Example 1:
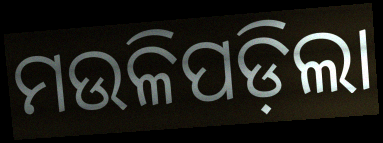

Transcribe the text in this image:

ମଉଳିପଡ଼ିଲା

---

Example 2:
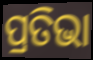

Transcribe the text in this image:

ପ୍ରତିଭା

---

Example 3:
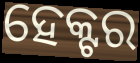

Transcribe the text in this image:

ହେକ୍ଟର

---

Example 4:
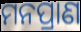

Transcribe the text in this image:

ମନପ୍ରାଣ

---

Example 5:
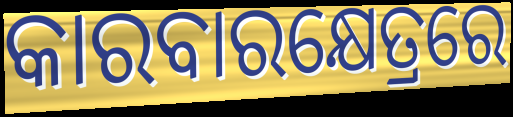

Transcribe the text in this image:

କାରବାରକ୍ଷେତ୍ରରେ